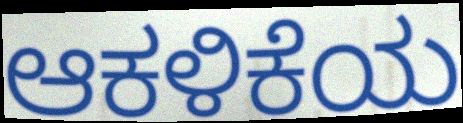
ಆಕಳಿಕೆಯ